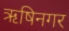
ऋषिनगर